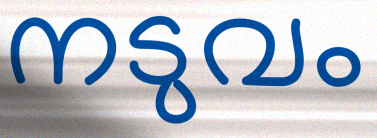
നടുവം